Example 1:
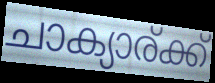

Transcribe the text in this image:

ചാക്യാര്ക്ക്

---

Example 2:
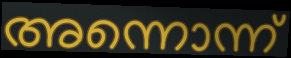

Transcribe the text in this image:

അന്നൊന്ന്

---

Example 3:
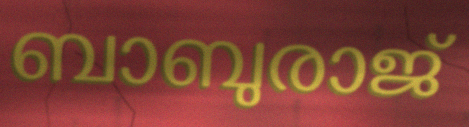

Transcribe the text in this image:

ബാബുരാജ്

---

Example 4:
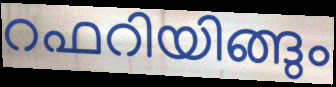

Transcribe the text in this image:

റഫറിയിങ്ങും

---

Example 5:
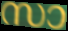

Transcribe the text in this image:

സാ